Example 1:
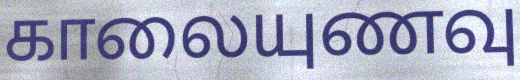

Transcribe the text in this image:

காலையுணவு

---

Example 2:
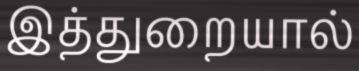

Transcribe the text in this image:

இத்துறையால்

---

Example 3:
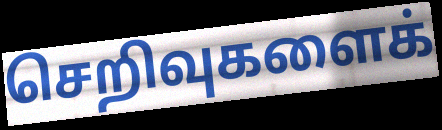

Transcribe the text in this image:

செறிவுகளைக்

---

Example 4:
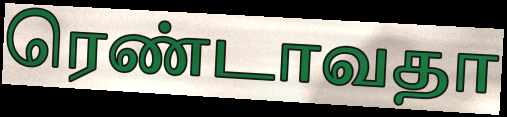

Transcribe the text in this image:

ரெண்டாவதா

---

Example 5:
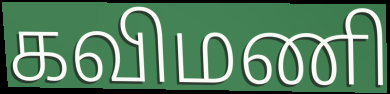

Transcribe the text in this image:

கவிமணி